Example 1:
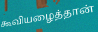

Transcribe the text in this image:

கூவியழைத்தான்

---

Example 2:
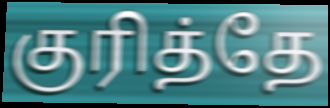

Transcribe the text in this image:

குரித்தே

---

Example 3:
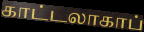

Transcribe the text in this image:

காட்டலாகாப்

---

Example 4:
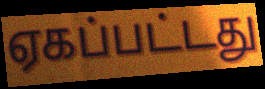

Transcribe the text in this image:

ஏகப்பட்டது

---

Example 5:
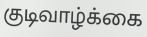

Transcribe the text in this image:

குடிவாழ்க்கை